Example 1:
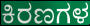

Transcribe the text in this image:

ಕಿರಣಗಳ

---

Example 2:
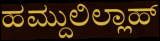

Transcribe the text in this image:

ಹಮ್ದುಲಿಲ್ಲಾಹ್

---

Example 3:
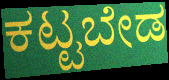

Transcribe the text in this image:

ಕಟ್ಟಬೇಡ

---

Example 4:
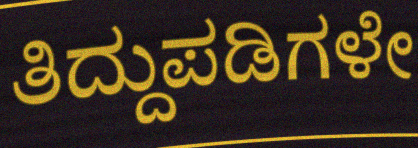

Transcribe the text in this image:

ತಿದ್ದುಪಡಿಗಳೇ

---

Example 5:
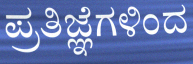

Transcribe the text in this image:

ಪ್ರತಿಜ್ಞೆಗಳಿಂದ